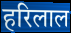
हरिलाल